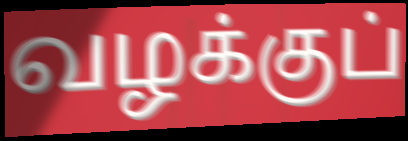
வழக்குப்